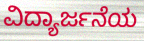
ವಿದ್ಯಾರ್ಜನೆಯ